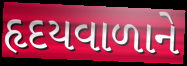
હૃદયવાળાને